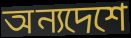
অন্যদেশে